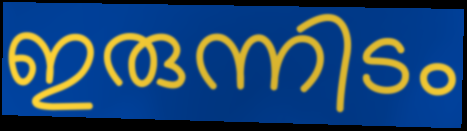
ഇരുന്നിടം